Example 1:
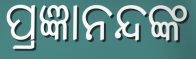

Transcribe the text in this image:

ପ୍ରଜ୍ଞାନନ୍ଦଙ୍କ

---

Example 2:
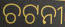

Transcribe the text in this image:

ଚଟନୀ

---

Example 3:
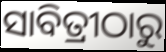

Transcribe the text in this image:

ସାବିତ୍ରୀଠାରୁ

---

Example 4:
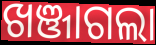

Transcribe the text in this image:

ଖଞ୍ଜାଗଲା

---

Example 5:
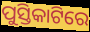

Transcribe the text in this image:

ପୁସ୍ତିକାଟିରେ